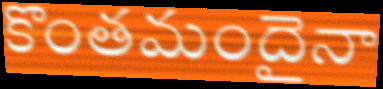
కొంతమందైనా